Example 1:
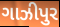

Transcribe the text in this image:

ગાઝીપુર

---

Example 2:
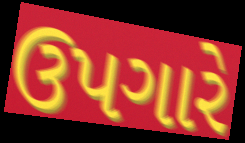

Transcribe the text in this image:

ઉપગારે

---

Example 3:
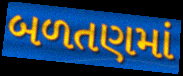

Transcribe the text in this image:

બળતણમાં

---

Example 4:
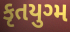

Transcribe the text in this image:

કૃતયુગ્મ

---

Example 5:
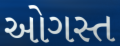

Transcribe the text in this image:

ઓગસ્ત